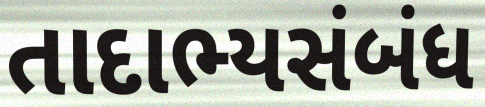
તાદાભ્યસંબંધ